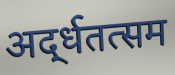
अर्द्धतत्सम